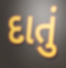
દાતું